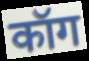
कॉग